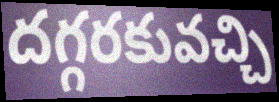
దగ్గరకువచ్చి